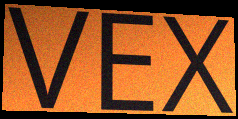
VEX